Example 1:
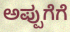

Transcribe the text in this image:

ಅಪ್ಪುಗೆಗೆ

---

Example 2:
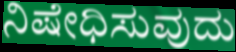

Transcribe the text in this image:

ನಿಷೇಧಿಸುವುದು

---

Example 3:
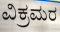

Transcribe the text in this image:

ವಿಕ್ರಮರ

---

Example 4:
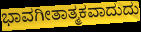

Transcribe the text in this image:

ಭಾವಗೀತಾತ್ಮಕವಾದುದು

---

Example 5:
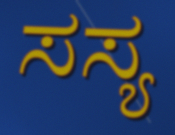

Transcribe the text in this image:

ಸಸ್ಯ